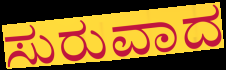
ಸುರುವಾದ